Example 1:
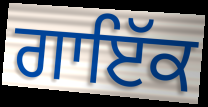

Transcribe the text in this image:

ਗਾਇੱਕ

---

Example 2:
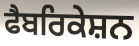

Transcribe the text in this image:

ਫੈਬਰਿਕੇਸ਼ਨ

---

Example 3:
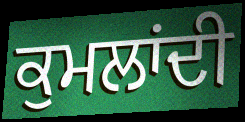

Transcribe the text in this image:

ਕੁਮਲਾਂਦੀ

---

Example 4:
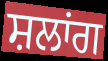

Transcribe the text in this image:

ਸ਼ਲਾਂਗ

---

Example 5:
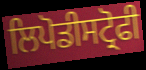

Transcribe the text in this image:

ਲਿਪੋਡੀਸਟ੍ਰੋਫੀ